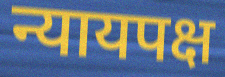
न्यायपक्ष